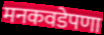
मनकवडेपणा